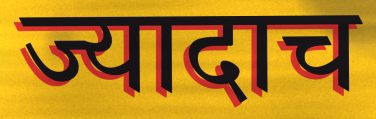
ज्यादाच